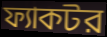
ফ্যাকটর